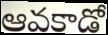
ఆవకాడో